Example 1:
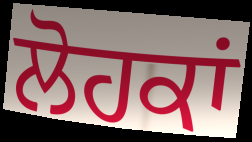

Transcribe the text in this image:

ਲੋਹਕਾਂ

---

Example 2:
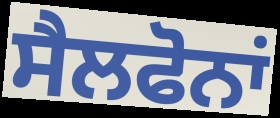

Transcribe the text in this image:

ਸੈਲਫੋਨਾਂ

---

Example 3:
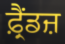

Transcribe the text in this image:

ਫ਼੍ਰੈਂਡਜ਼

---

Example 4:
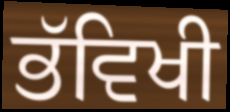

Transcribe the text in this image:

ਭੱਵਿਖੀ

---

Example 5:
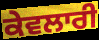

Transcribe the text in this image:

ਕੇਵਲਾਰੀ